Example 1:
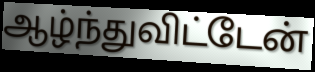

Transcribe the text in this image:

ஆழ்ந்துவிட்டேன்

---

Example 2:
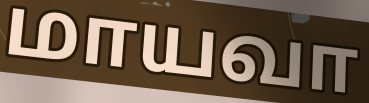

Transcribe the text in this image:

மாயவா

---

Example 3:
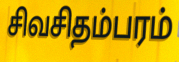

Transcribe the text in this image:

சிவசிதம்பரம்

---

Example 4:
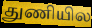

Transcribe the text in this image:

துணியில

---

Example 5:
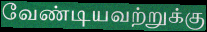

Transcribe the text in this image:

வேண்டியவற்றுக்கு